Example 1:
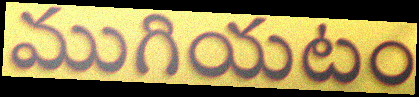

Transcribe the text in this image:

ముగియటం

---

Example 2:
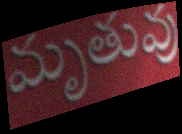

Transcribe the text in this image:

మృతువు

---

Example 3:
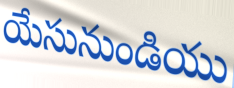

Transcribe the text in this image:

యేసునుండియు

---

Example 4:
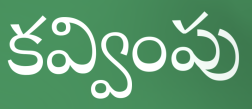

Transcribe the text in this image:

కవ్వింపు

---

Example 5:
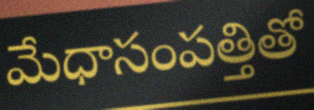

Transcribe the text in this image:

మేధాసంపత్తితో